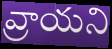
వ్రాయని